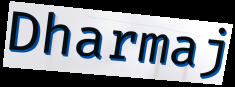
Dharmaj